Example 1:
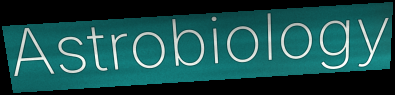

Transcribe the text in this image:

Astrobiology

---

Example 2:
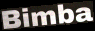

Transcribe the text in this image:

Bimba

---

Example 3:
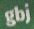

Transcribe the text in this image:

gbj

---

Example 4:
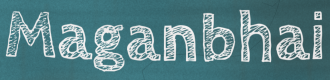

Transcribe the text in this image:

Maganbhai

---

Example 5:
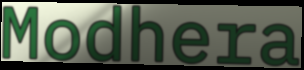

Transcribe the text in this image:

Modhera